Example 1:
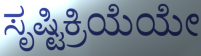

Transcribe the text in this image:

ಸೃಷ್ಟಿಕ್ರಿಯೆಯೇ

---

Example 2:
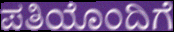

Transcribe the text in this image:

ಪತಿಯೊಂದಿಗೆ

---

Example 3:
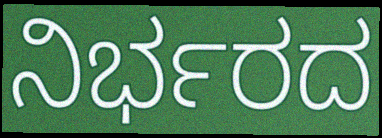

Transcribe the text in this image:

ನಿರ್ಭರದ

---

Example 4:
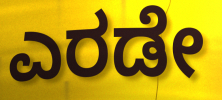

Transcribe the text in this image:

ಎರಡೇ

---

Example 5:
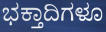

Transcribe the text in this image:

ಭಕ್ತಾದಿಗಳೂ